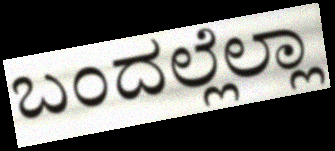
ಬಂದಲ್ಲೆಲ್ಲಾ